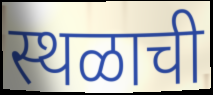
स्थळाची